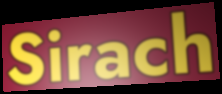
Sirach